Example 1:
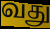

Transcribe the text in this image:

வது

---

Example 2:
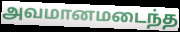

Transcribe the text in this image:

அவமானமடைந்த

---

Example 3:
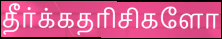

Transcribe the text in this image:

தீர்க்கதரிசிகளோ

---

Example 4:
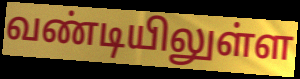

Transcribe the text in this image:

வண்டியிலுள்ள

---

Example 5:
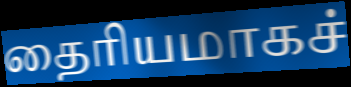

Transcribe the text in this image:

தைரியமாகச்